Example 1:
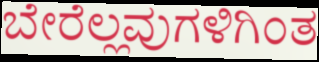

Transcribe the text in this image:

ಬೇರೆಲ್ಲವುಗಳಿಗಿಂತ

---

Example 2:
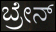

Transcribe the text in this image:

ಬ್ರೇನ್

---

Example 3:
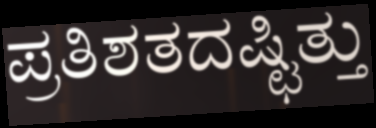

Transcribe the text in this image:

ಪ್ರತಿಶತದಷ್ಟಿತ್ತು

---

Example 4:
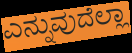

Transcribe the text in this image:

ಎನ್ನುವುದೆಲ್ಲಾ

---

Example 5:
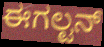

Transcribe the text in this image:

ಈಗಲ್ಟನ್